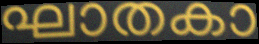
ഘാതകാ